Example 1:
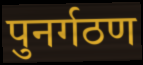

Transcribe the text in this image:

पुनर्गठण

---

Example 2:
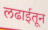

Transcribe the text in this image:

लढाईतून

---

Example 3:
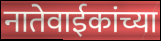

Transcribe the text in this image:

नातेवाईकांच्या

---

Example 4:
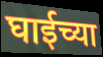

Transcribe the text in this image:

घाईच्या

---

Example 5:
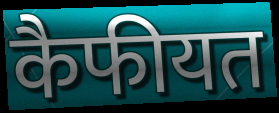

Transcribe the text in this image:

कैफीयत